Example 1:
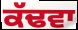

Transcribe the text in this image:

ਕੱਢਵਾ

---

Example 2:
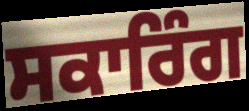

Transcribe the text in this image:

ਸਕਾਰਿੰਗ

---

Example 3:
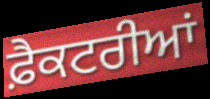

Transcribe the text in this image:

ਫ਼ੈਕਟਰੀਆਂ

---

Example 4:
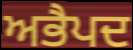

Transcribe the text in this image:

ਅਭੈਪਦ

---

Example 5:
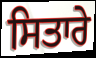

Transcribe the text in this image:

ਸਿਤਾਰੇ